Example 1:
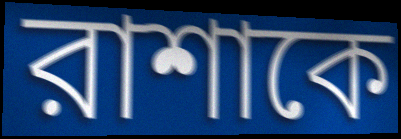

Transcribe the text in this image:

রাশাকে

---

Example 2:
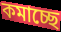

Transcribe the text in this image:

কমাচ্ছে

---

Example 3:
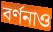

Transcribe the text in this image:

বর্ণনাও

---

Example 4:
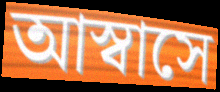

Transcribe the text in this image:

আস্বাসে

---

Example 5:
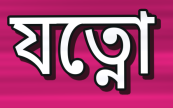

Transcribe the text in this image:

যত্নো